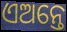
ଏଅନ୍ତେ